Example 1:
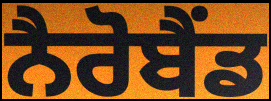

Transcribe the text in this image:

ਨੈਰੋਬੈਂਡ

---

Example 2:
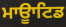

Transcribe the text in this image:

ਮਾਊਾਟਿਡ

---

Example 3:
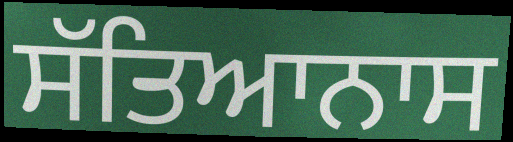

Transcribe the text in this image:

ਸੱਤਿਆਨਾਸ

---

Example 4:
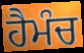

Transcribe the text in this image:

ਹੈਮੰਚ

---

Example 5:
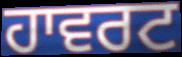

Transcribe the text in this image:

ਹਾਵਰਟ